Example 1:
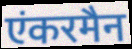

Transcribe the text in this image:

एंकरमैन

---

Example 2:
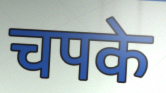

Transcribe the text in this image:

चपके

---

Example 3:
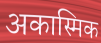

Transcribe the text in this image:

अकास्मिक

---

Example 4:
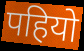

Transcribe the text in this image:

पहियो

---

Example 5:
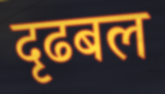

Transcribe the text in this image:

दृढबल